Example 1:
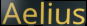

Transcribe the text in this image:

Aelius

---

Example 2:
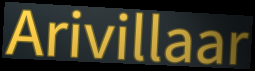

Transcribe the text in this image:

Arivillaar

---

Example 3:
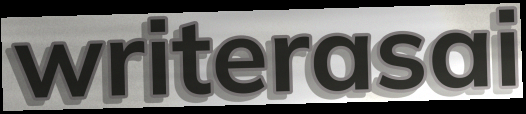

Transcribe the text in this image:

writerasai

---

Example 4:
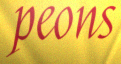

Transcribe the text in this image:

peons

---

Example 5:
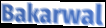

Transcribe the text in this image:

Bakarwal